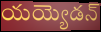
యయ్యెడన్